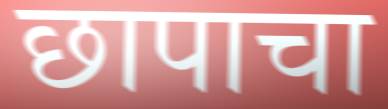
छापाचा